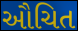
ઔચિત